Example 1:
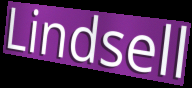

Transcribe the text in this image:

Lindsell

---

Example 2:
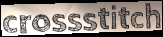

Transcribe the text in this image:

crossstitch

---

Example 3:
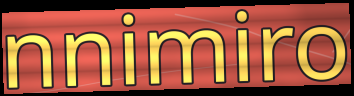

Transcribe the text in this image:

nnimiro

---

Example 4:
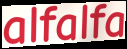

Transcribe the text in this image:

alfalfa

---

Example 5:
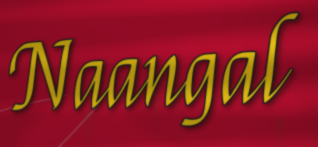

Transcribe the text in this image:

Naangal